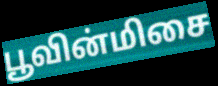
பூவின்மிசை